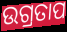
ଉଗ୍ରତାପ